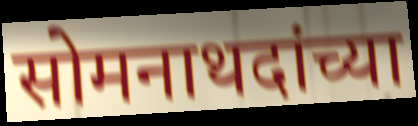
सोमनाथदांच्या